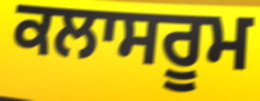
ਕਲਾਸਰੂਮ